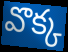
వొక్క